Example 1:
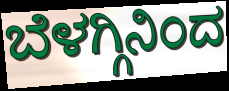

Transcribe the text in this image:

ಬೆಳಗ್ಗಿನಿಂದ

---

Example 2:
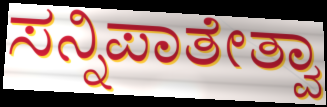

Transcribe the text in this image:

ಸನ್ನಿಪಾತೇತ್ವಾ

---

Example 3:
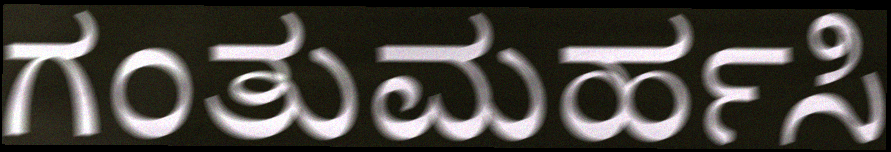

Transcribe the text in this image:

ಗಂತುಮರ್ಹಸಿ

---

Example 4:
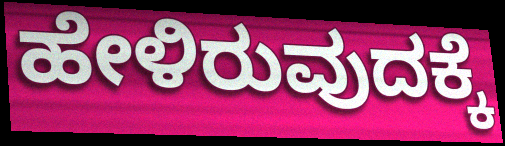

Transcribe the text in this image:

ಹೇಳಿರುವುದಕ್ಕೆ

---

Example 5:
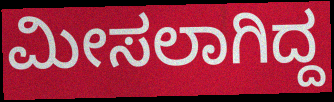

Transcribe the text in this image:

ಮೀಸಲಾಗಿದ್ದ